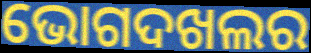
ଭୋଗଦଖଲର